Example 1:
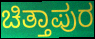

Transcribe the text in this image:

ಚಿತ್ತಾಪುರ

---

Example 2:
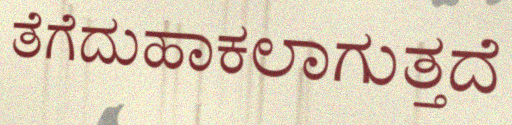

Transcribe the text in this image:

ತೆಗೆದುಹಾಕಲಾಗುತ್ತದೆ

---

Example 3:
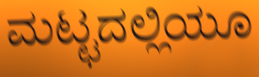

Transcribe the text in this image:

ಮಟ್ಟದಲ್ಲಿಯೂ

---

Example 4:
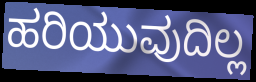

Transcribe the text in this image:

ಹರಿಯುವುದಿಲ್ಲ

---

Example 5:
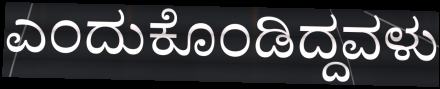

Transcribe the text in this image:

ಎಂದುಕೊಂಡಿದ್ದವಳು